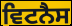
ਵਿਟਨੈਸ